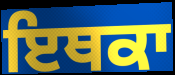
ਇਥਕਾ